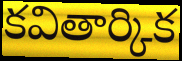
కవితార్కిక